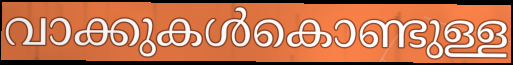
വാക്കുകൾകൊണ്ടുള്ള